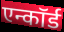
एन्कॉर्ड